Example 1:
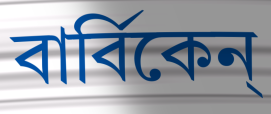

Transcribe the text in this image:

বার্বিকেন্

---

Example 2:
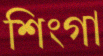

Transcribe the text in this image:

শিংগা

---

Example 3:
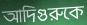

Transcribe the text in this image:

আদিগুরুকে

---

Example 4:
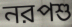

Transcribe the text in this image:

নরপশু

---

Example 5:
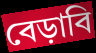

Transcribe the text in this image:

বেড়াবি